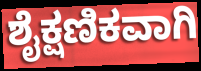
ಶೈಕ್ಷಣಿಕವಾಗಿ